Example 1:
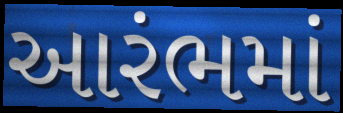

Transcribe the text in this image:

આરંભમાં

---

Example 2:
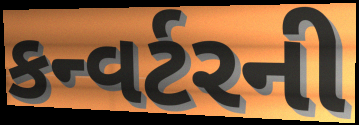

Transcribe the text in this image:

કન્વર્ટરની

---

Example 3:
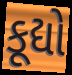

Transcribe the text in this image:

કૂદ્યો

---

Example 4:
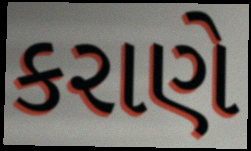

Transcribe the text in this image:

કરાણે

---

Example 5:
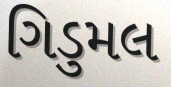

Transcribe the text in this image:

ગિડુમલ